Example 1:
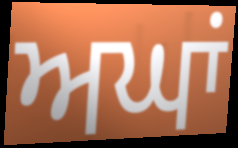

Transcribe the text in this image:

ਅਘਾਂ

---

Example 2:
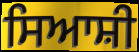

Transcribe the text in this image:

ਸਿਆਸ਼ੀ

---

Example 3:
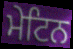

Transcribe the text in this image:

ਮੇਟਿਨ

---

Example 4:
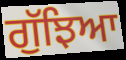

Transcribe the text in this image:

ਗੁੱਝਿਆ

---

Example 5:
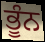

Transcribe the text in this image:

ਭੂੰਨ